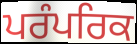
ਪਰੰਪਰਿਕ